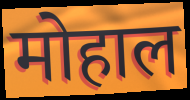
मोहाल